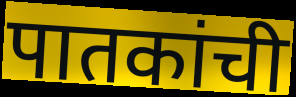
पातकांची